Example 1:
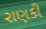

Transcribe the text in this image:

રાણકી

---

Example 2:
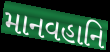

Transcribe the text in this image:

માનવહાનિ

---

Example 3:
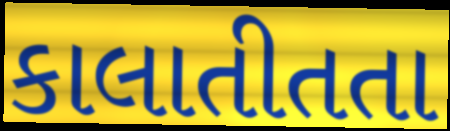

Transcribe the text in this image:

કાલાતીતતા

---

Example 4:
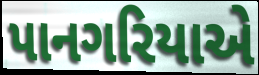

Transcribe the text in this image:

પાનગરિયાએ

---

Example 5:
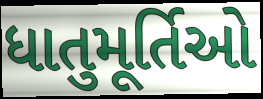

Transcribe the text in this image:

ધાતુમૂર્તિઓ